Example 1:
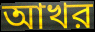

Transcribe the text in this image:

আখর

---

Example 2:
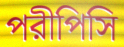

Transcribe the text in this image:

পরীপিসি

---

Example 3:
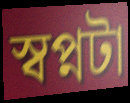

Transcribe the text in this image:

স্বপ্নটা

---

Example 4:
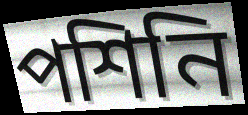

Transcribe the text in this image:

পশিনি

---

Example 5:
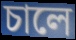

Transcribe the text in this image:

চালে